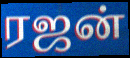
ரஜன்